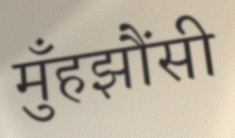
मुँहझौंसी